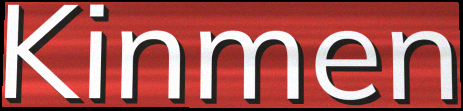
Kinmen